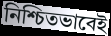
নিশ্চিতভাবেই